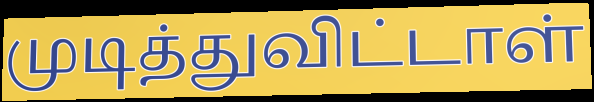
முடித்துவிட்டாள்